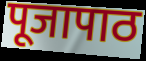
पूजापाठ